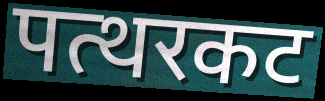
पत्थरकट